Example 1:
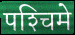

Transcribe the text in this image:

पश्चिमे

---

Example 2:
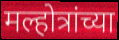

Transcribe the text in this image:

मल्होत्रांच्या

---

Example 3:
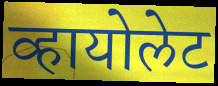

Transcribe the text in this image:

व्हायोलेट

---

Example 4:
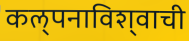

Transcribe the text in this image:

कल्पनाविश्वाची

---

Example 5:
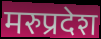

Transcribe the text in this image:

मरुप्रदेश